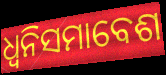
ଧ୍ୱନିସମାବେଶ